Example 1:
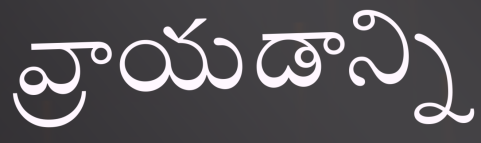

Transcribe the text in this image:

వ్రాయడాన్ని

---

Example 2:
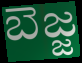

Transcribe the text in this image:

బెజ్జ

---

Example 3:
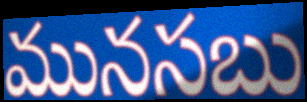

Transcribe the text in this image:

మునసబు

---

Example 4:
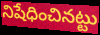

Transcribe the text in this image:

నిషేధించినట్టు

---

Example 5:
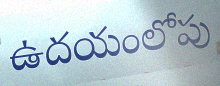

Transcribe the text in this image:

ఉదయంలోపు